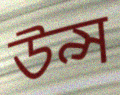
উন্স